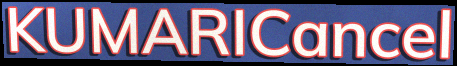
KUMARICancel